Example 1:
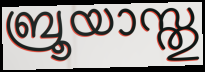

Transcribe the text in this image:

ബ്രൂയാസ്തു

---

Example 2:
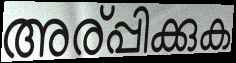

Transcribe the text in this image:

അര്പ്പിക്കുക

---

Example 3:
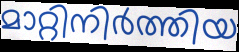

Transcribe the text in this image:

മാറ്റിനിർത്തിയ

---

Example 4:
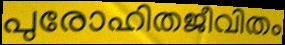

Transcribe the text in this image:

പുരോഹിതജീവിതം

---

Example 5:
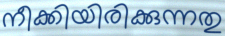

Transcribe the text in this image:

നീക്കിയിരിക്കുന്നതു